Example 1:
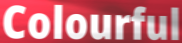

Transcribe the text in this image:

Colourful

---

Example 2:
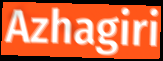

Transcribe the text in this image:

Azhagiri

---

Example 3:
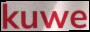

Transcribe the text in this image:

kuwe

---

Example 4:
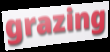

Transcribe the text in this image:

grazing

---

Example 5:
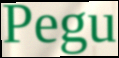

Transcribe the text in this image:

Pegu